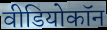
वीडियोकॉन